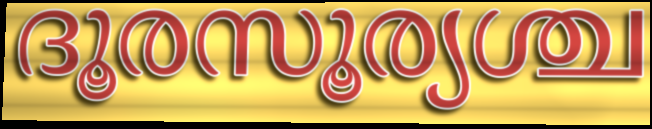
ദൂരസൂര്യശ്ച